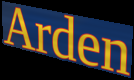
Arden